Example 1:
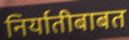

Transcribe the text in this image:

निर्यातीबाबत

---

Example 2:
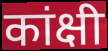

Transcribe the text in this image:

कांक्षी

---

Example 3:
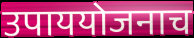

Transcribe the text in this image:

उपाययोजनाच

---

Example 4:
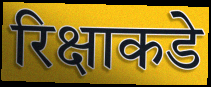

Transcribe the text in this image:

रिक्षाकडे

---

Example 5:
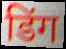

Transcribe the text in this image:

डिंग